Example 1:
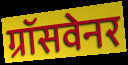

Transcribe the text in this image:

ग्रॉसवेनर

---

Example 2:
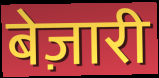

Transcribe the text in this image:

बेज़ारी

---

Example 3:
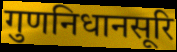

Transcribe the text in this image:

गुणनिधानसूरि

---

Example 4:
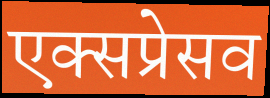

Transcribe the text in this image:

एक्सप्रेसव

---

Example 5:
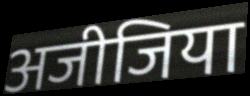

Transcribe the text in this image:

अजीजिया